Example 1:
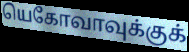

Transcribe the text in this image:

யெகோவாவுக்குக்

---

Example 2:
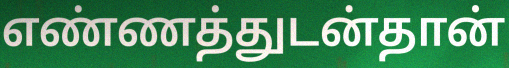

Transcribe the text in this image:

எண்ணத்துடன்தான்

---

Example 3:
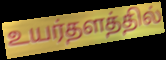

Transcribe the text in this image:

உயர்தளத்தில்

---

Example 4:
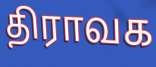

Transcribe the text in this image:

திராவக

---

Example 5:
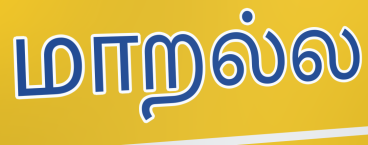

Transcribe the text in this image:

மாறல்ல